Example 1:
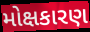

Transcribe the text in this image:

મોક્ષકારણ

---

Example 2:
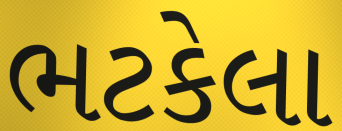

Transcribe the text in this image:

ભટકેલા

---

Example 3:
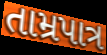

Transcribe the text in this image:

તામ્રપાત્ર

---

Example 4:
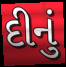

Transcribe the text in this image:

દીનું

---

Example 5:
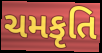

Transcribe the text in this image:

ચમકૃતિ